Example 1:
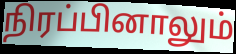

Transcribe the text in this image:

நிரப்பினாலும்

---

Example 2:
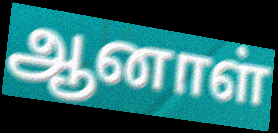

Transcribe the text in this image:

ஆனாள்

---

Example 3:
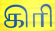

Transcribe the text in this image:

கிரி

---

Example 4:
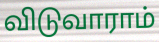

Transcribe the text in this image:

விடுவாராம்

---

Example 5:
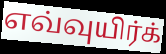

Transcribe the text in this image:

எவ்வுயிர்க்